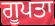
ਗੂਪਤਾ